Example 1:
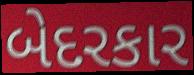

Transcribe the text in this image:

બેદરકાર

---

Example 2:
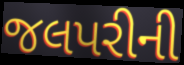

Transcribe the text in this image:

જલપરીની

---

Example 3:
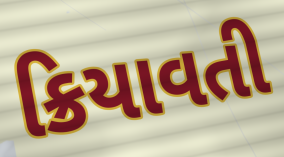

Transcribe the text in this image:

ક્રિયાવતી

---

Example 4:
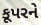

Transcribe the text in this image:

કૂપરને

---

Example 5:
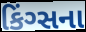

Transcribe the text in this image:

કિંગ્સના